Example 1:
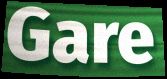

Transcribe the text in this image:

Gare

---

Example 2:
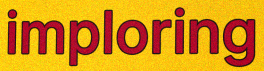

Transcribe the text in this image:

imploring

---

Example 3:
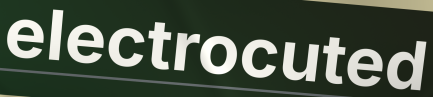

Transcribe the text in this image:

electrocuted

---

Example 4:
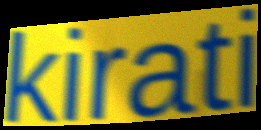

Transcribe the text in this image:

kirati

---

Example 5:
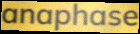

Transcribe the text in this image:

anaphase